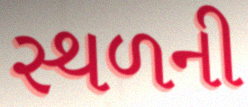
સ્થળની